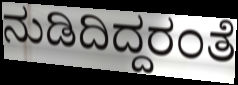
ನುಡಿದಿದ್ದರಂತೆ